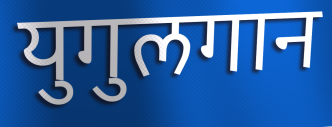
युगुलगान